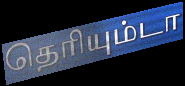
தெரியும்டா